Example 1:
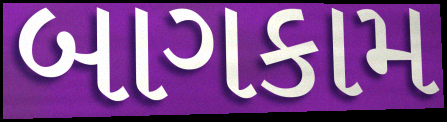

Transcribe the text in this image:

બાગકામ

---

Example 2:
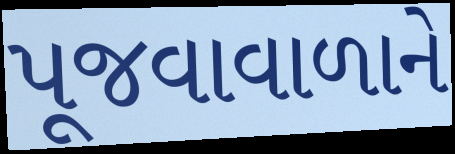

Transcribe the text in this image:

પૂજવાવાળાને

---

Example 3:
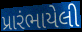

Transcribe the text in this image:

પ્રારંભાયેલી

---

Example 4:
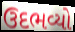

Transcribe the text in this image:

ઉદભવ્યો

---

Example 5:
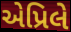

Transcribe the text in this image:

એપ્રિલે